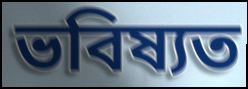
ভবিষ্যত